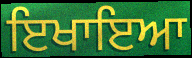
ਇਖਾਇਆ